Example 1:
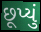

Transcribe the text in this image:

છૂપ્યું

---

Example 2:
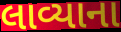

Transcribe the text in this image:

લાવ્યાના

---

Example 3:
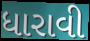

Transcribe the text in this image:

ધારાવી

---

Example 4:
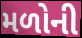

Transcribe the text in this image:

મળોની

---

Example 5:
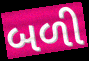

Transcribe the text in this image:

બળી